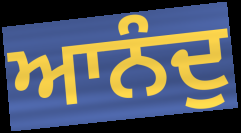
ਆਨੰਦੁ